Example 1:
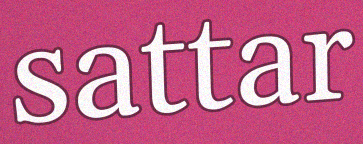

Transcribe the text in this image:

sattar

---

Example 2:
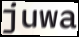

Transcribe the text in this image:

juwa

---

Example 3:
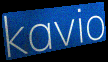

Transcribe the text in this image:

kavio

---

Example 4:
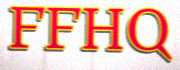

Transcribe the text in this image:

FFHQ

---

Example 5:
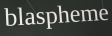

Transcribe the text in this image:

blaspheme